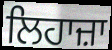
ਲਿਹਾਜ਼ਾ